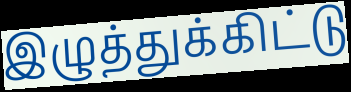
இழுத்துக்கிட்டு